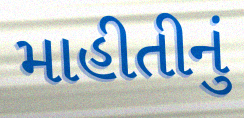
માહીતીનું